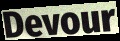
Devour